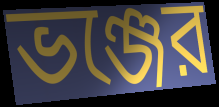
ভঞ্জের